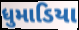
ધુમાડિયા